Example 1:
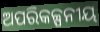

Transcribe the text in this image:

ଅପରିକଳ୍ପନୀୟ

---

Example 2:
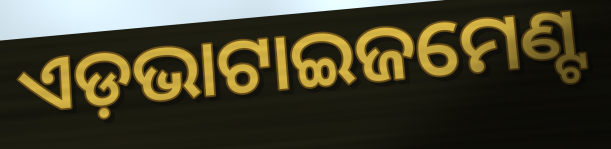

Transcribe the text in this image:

ଏଡ଼ଭାଟାଇଜମେଣ୍ଟ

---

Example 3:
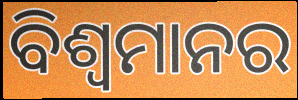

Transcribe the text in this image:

ବିଶ୍ୱମାନର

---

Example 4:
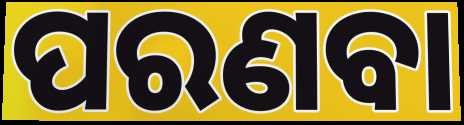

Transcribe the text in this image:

ପରଣବା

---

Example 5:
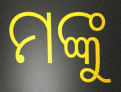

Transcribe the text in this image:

ମଙ୍କୁ